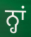
ਨ੍ਹਾਂ